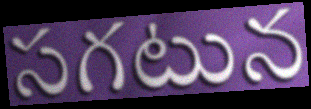
సగటున